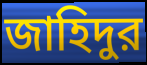
জাহিদুর